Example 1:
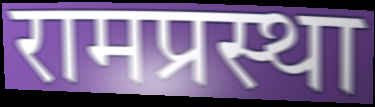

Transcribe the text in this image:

रामप्रस्था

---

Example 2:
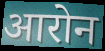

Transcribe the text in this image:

आरोन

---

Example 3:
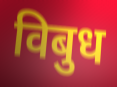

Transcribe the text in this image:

विबुध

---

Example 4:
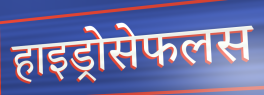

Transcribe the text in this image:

हाइड्रोसेफलस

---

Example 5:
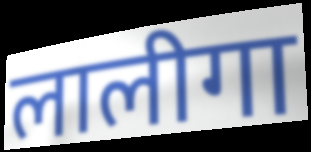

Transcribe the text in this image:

लालीगा